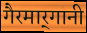
गैरमार्गानी